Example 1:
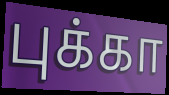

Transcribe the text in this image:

புக்கா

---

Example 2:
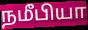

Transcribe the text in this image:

நமீபியா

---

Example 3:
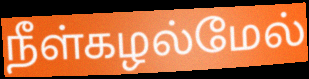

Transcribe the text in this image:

நீள்கழல்மேல்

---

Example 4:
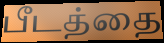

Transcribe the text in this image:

பீடத்தை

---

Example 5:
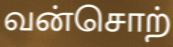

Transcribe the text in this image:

வன்சொற்